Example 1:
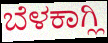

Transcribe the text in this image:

ಬೆಳಕಾಗ್ಲಿ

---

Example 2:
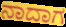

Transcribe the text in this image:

ನಾದಾಗ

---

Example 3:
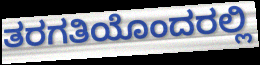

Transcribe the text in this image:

ತರಗತಿಯೊಂದರಲ್ಲಿ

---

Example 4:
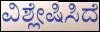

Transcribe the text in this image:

ವಿಶ್ಲೇಷಿಸಿದೆ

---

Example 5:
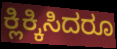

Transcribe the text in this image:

ಕ್ಲಿಕ್ಕಿಸಿದರೂ